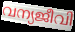
വന്യജീവി